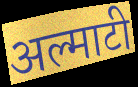
अल्माटी